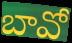
బావో